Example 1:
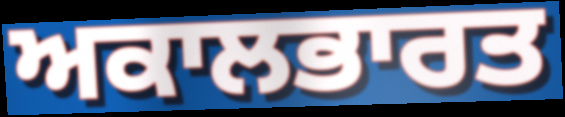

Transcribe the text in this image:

ਅਕਾਲਭਾਰਤ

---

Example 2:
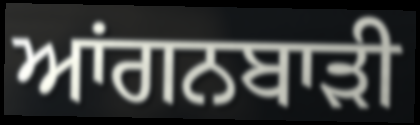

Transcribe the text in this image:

ਆਂਗਨਬਾੜੀ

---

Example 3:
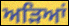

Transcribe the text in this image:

ਅੜਿਆਂ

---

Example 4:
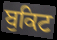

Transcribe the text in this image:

ਬੁਕਿਟ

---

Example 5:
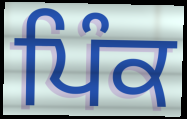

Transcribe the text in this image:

ਪਿੰਕ